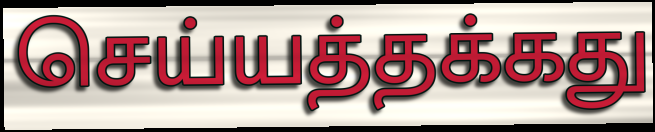
செய்யத்தக்கது